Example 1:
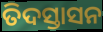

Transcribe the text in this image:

ତିଦସ୍ତାସନ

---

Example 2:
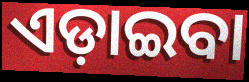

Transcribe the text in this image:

ଏଡ଼ାଇବା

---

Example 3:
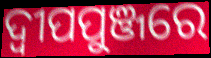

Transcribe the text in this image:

ଦ୍ବୀପପୁଞ୍ଜରେ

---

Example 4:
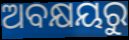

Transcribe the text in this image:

ଅବକ୍ଷୟରୁ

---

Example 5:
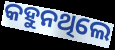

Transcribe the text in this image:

କହୁନଥିଲେ